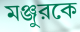
মঞ্জুরকে